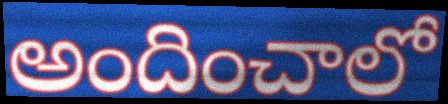
అందించాలో